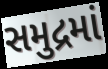
સમુદ્રમાં